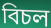
বিচল